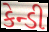
કેન્ડી